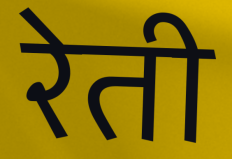
रेती